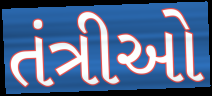
તંત્રીઓ